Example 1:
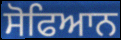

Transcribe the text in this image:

ਸੋਫਿਆਨ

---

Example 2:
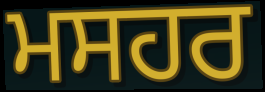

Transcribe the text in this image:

ਮਸਹਰ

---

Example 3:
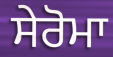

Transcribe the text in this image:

ਸੇਰੋਮਾ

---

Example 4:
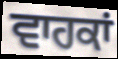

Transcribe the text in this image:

ਵਾਹਕਾਂ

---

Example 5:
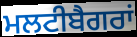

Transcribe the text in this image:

ਮਲਟੀਬੈਗਰਾਂ